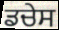
ਡਚੇਸ